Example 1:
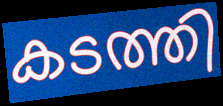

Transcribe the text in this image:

കടത്തി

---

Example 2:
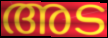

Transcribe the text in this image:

അട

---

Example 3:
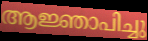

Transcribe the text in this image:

ആജ്ഞാപിച്ചു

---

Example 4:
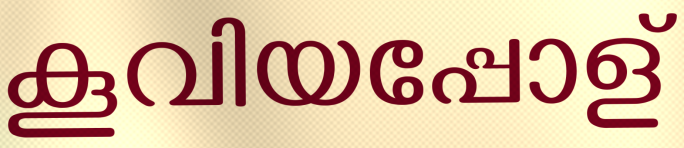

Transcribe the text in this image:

കൂവിയപ്പോള്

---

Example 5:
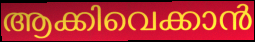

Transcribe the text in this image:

ആക്കിവെക്കാൻ